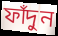
ফাঁদুন